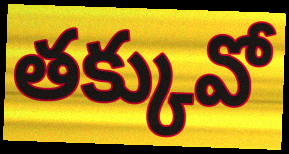
తక్కువో